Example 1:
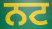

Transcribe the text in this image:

ਨਟ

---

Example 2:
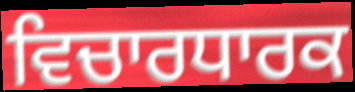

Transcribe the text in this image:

ਵਿਚਾਰਧਾਰਕ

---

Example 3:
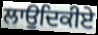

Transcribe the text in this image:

ਲਾਉਦਿਕੀਏ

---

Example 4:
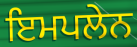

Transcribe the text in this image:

ਇਮਪਲੇਨ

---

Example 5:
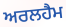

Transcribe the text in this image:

ਅਰਲਹੈਮ